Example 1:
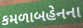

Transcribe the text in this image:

કમળાબહેનના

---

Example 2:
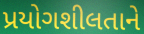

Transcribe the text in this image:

પ્રયોગશીલતાને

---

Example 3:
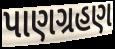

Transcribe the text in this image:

પાણગ્રહણ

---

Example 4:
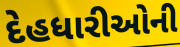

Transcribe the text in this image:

દેહધારીઓની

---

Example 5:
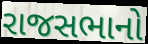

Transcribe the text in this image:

રાજસભાનો